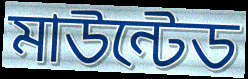
মাউন্টেড